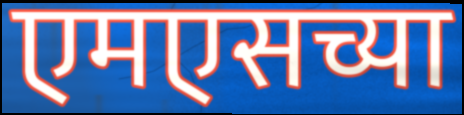
एमएसच्या